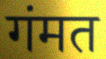
गंमत